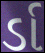
ર્ડા